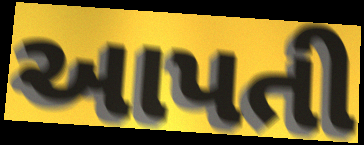
આપતી